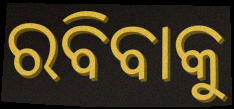
ରବିବାକୁ